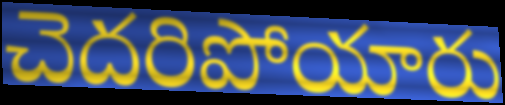
చెదరిపోయారు